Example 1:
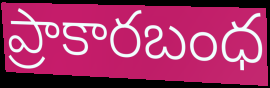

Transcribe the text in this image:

ప్రాకారబంధ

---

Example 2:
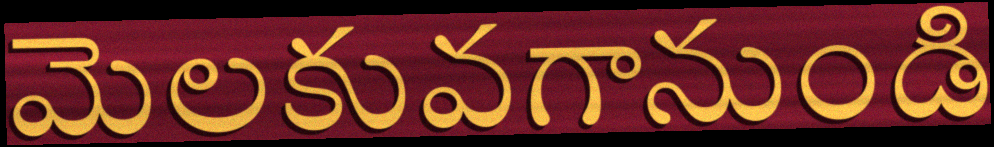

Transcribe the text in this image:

మెలకువగానుండి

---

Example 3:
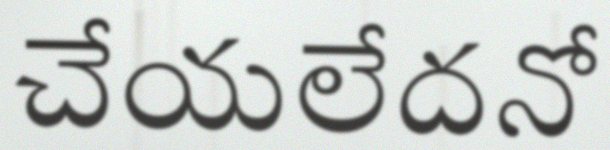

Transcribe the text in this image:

చేయలేదనో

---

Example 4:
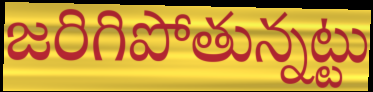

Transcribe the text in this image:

జరిగిపోతున్నట్టు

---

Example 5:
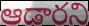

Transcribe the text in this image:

ఆడారని